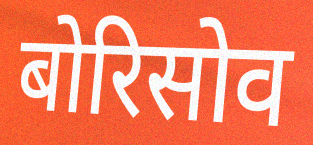
बोरिसोव